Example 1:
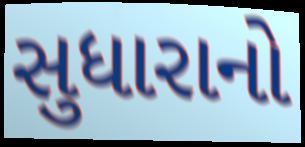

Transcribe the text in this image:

સુધારાનો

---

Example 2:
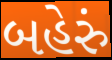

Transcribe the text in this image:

બહેરું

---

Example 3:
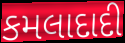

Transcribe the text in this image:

કમલાદાદી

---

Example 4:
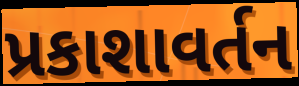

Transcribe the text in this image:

પ્રકાશાવર્તન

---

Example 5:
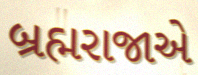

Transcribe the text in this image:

બ્રહ્મરાજાએ